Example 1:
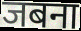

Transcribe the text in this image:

जबना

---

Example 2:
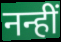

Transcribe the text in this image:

नन्हीं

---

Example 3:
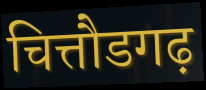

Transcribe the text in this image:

चित्तौडगढ़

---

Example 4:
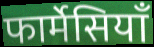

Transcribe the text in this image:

फार्मेसियाँ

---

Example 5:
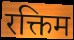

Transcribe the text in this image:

रक्तिम